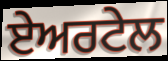
ਏਅਰਟੇਲ